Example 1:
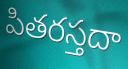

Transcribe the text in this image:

పితరస్తదా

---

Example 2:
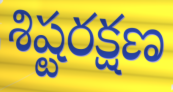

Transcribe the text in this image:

శిష్టరక్షణ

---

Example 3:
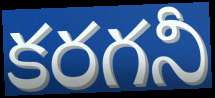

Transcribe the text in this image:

కరగనీ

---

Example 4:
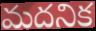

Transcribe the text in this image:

మదనిక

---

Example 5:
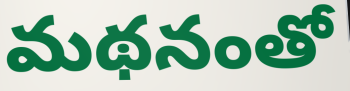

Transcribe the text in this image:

మథనంతో